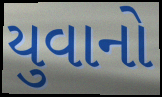
યુવાનો